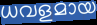
ധവളമായ